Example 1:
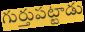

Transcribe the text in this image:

గుర్తుపట్టాడు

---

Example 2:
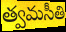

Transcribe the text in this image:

త్వమసీతి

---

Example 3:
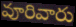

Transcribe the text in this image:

వూరివారు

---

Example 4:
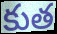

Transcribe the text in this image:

కుత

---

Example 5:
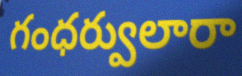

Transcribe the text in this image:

గంధర్వులారా